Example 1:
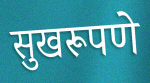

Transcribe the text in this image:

सुखरूपणे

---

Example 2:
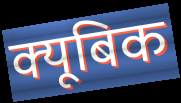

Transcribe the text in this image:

क्यूबिक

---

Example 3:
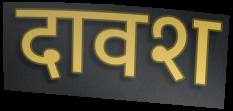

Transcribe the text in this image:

दावश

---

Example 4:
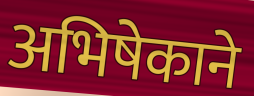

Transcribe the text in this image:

अभिषेकाने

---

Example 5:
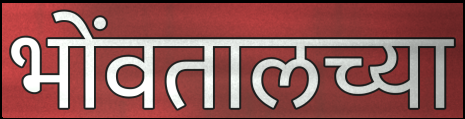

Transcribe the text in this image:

भोंवतालच्या